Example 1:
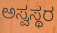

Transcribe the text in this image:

ಅಸ್ವಸ್ಥರ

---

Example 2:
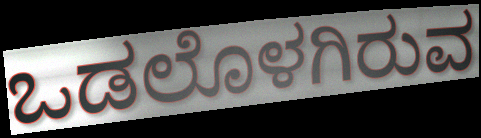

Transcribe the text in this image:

ಒಡಲೊಳಗಿರುವ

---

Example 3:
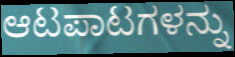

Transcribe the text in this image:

ಆಟಪಾಟಗಳನ್ನು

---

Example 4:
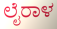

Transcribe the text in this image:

ಲೈರಾಳ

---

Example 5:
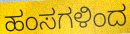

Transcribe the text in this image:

ಹಂಸಗಳಿಂದ